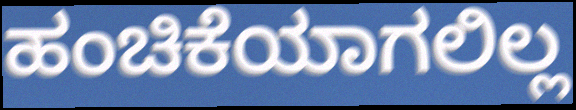
ಹಂಚಿಕೆಯಾಗಲಿಲ್ಲ